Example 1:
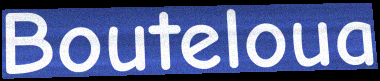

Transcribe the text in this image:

Bouteloua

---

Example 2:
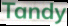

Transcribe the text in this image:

Tandy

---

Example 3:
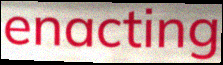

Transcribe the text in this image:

enacting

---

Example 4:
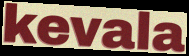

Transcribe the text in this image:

kevala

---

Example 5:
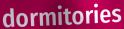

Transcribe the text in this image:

dormitories